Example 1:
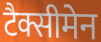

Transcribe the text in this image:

टैक्सीमेन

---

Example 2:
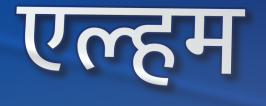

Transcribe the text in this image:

एल्हम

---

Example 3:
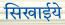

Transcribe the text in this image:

सिखाईये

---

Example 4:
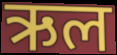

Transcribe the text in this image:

ऋल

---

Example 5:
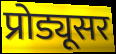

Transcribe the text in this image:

प्रोड्यूसर